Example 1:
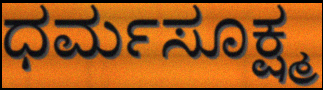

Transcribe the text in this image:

ಧರ್ಮಸೂಕ್ಷ್ಮ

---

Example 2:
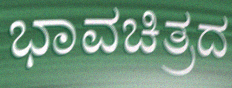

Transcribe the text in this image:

ಭಾವಚಿತ್ರದ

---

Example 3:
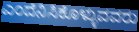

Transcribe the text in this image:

ಎಂದೆನಿಸಿಕೊಳ್ಳುವವರು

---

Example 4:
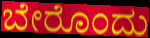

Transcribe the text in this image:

ಬೇರೊಂದು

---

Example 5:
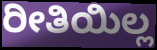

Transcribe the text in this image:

ರೀತಿಯಿಲ್ಲ